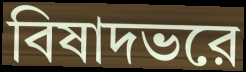
বিষাদভরে